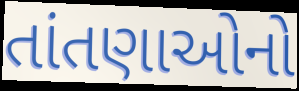
તાંતણાઓનો